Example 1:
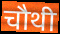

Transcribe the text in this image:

चौथी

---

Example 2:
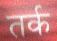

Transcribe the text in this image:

तर्क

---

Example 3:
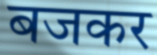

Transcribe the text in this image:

बजकर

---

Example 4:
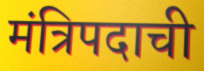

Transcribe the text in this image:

मंत्रिपदाची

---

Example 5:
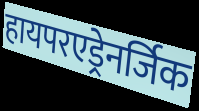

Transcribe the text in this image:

हायपरएड्रेनर्जिक